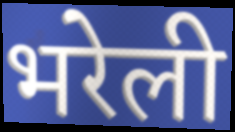
भरेली